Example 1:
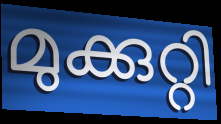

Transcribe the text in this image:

മുക്കുറ്റി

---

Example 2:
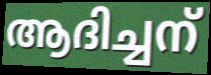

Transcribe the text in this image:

ആദിച്ചന്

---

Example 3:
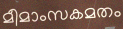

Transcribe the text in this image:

മീമാംസകമതം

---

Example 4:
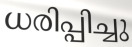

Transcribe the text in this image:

ധരിപ്പിച്ചു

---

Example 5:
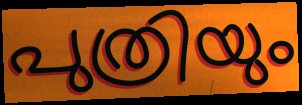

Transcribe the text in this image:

പുത്രിയും